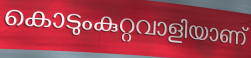
കൊടുംകുറ്റവാളിയാണ്